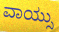
ವಾಯ್ಸು